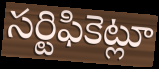
సర్టిఫికెట్లూ